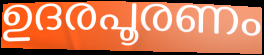
ഉദരപൂരണം